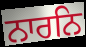
ਨਾਰਨਿ